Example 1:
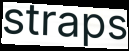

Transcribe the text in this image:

straps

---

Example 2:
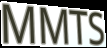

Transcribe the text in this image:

MMTS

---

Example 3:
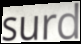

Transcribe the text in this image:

surd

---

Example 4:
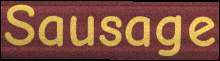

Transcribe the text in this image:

Sausage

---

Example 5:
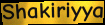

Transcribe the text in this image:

Shakiriyya